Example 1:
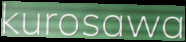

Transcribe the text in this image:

kurosawa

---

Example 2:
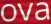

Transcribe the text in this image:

ova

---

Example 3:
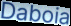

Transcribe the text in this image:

Daboia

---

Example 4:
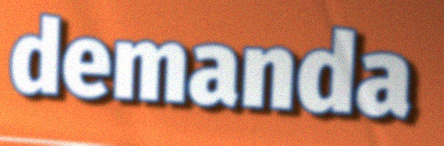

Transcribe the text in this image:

demanda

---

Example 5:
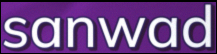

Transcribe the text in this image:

sanwad